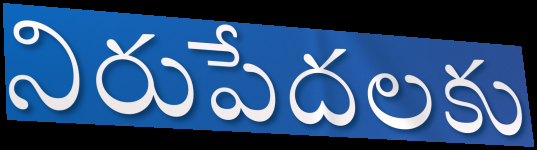
నిరుపేదలకు